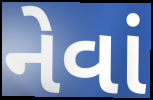
નેવાં